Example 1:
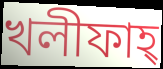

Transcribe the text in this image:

খলীফাহ্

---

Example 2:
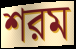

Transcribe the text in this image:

শরম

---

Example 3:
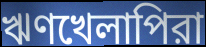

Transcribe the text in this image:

ঋণখেলাপিরা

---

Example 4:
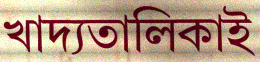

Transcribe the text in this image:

খাদ্যতালিকাই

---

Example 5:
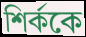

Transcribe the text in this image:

শির্ককে